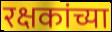
रक्षकांच्या